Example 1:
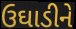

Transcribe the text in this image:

ઉઘાડીને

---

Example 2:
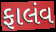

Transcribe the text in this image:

ફાલંવ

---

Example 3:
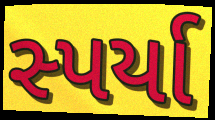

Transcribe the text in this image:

સ્પર્યા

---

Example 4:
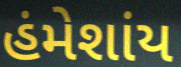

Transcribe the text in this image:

હંમેશાંય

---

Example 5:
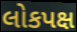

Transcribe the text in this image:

લોકપક્ષ